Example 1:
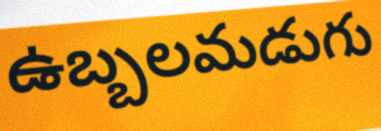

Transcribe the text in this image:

ఉబ్బలమడుగు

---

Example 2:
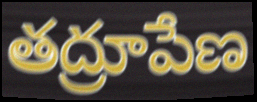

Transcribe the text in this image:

తద్రూపేణ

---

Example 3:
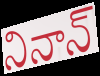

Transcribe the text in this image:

నినాన్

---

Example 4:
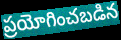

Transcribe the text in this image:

ప్రయోగించబడిన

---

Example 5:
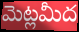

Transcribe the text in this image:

మెట్లమీద